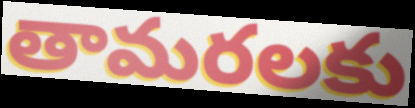
తామరలకు